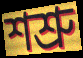
শশ্রু